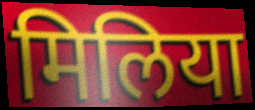
मिलिया